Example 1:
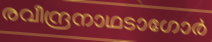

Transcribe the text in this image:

രവീന്ദ്രനാഥടാഗോർ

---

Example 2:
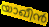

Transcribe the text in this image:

യാഖീൻ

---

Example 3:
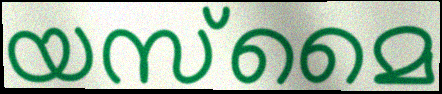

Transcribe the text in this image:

യസ്മൈ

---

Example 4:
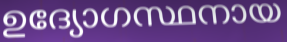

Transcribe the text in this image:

ഉദ്യോഗസ്ഥനായ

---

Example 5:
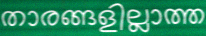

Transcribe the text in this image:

താരങ്ങളില്ലാത്ത